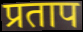
प्रताप